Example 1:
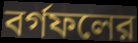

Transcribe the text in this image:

বর্গফলের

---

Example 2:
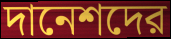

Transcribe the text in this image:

দানেশদের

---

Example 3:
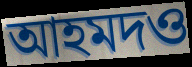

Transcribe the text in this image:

আহমদও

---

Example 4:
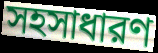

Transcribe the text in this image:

সহসাধারণ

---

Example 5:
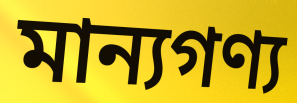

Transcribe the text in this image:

মান্যগণ্য